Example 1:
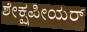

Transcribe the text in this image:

ಶೇಕ್ಷಪೀಯರ್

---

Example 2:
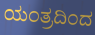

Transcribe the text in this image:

ಯಂತ್ರದಿಂದ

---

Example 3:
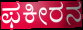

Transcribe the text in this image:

ಫಕೀರನ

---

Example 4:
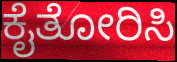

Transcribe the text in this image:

ಕೈತೋರಿಸಿ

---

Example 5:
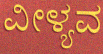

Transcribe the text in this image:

ವೀಳ್ಯವ